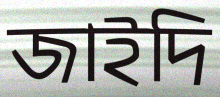
জাইদি